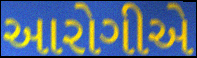
આરોગીએ